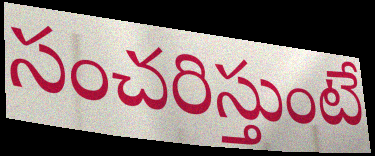
సంచరిస్తుంటే